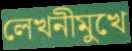
লেখনীমুখে